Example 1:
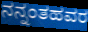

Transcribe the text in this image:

ನನ್ನಂತಹವರ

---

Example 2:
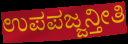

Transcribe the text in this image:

ಉಪಪಜ್ಜನ್ತೀತಿ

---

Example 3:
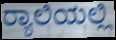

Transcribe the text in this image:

ರ‍್ಯಾಲಿಯಲ್ಲಿ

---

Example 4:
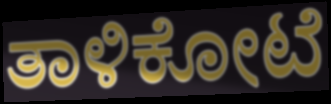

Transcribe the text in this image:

ತಾಳಿಕೋಟೆ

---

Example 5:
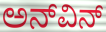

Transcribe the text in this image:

ಅನ್‌ವಿನ್